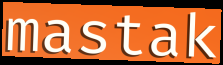
mastak